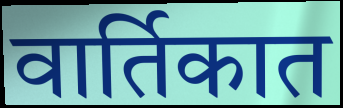
वार्तिकात